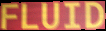
FLUID